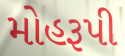
મોહરૂપી